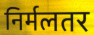
निर्मलतर